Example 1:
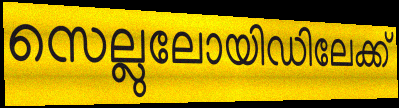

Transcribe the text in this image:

സെല്ലുലോയിഡിലേക്ക്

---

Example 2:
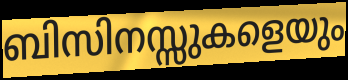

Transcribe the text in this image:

ബിസിനസ്സുകളെയും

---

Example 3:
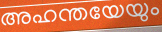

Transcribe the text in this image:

അഹന്തയേയും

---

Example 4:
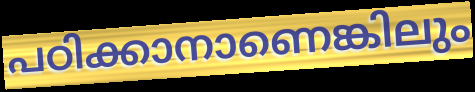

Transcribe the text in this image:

പഠിക്കാനാണെങ്കിലും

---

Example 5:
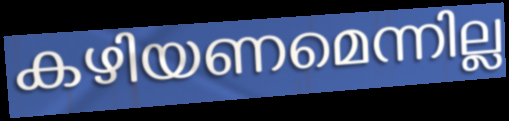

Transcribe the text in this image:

കഴിയണമെന്നില്ല